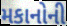
મકાનોની